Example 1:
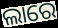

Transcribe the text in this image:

ଲାରେ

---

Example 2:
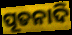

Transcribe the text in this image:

ପୂତନାଦି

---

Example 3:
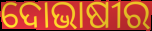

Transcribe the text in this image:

ଦୋଭାଷୀର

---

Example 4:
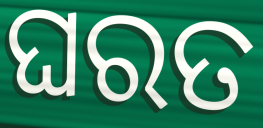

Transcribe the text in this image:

ଘରତ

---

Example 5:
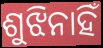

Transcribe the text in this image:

ଶୁଝିନାହିଁ